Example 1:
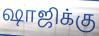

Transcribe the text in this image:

ஷாஜிக்கு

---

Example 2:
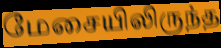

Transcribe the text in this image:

மேசையிலிருந்த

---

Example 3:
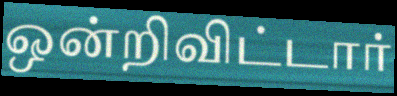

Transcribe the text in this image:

ஒன்றிவிட்டார்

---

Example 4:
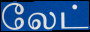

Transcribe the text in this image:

லேட்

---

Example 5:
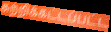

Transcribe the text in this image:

சுற்றிக்கட்டப்பட்ட